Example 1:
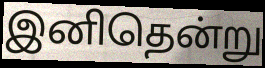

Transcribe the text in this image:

இனிதென்று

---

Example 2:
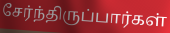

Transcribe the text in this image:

சேர்ந்திருப்பார்கள்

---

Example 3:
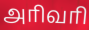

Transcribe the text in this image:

அரிவரி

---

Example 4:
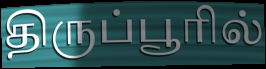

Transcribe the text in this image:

திருப்பூரில்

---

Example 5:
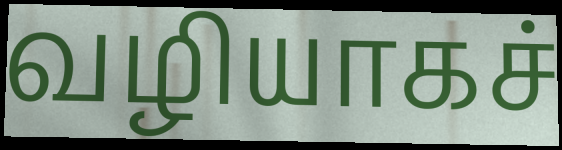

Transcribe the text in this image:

வழியாகச்